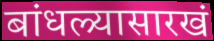
बांधल्यासारखं